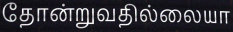
தோன்றுவதில்லையா